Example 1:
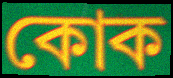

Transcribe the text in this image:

কোক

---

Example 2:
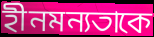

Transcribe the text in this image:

হীনমন্যতাকে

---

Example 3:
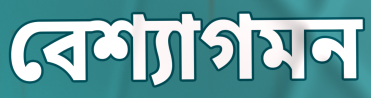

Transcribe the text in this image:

বেশ্যাগমন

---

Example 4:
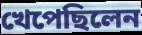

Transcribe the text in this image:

খেপেছিলেন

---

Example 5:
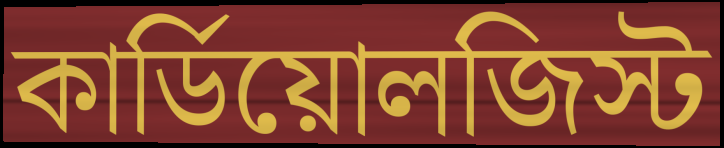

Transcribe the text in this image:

কার্ডিয়োলজিস্ট